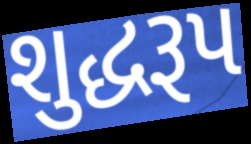
શુદ્ધરૂપ